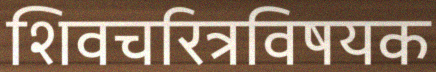
शिवचरित्रविषयक